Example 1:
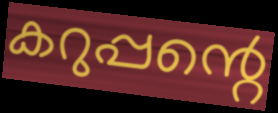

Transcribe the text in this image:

കറുപ്പന്റെ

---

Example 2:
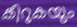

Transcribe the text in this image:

കീറുകയും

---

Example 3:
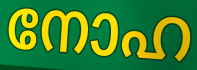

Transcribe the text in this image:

നോഹ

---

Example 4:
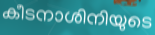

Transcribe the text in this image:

കീടനാശിനിയുടെ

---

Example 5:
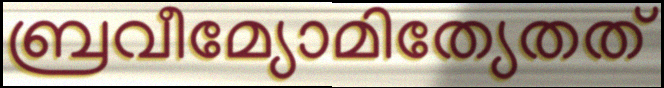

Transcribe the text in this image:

ബ്രവീമ്യോമിത്യേതത്